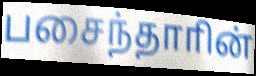
பசைந்தாரின்